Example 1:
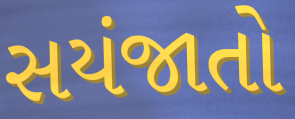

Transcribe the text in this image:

સયંજાતો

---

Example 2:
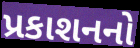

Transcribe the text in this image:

પ્રકાશનનો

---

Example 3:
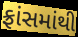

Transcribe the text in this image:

ફ્રાંસમાંથી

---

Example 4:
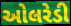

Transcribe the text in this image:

ઓલરેડી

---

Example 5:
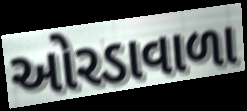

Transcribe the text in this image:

ઓરડાવાળા